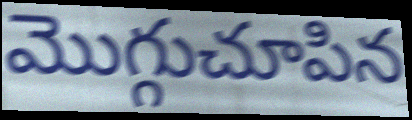
మొగ్గుచూపిన